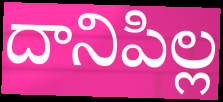
దానిపిల్ల